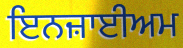
ਇਨਜ਼ਾਈਅਮ